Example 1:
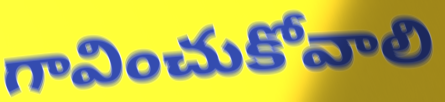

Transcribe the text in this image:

గావించుకోవాలి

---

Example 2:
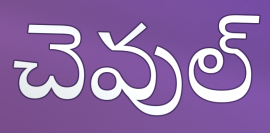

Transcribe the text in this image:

చెవుల్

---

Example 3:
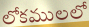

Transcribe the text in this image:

లోకములలో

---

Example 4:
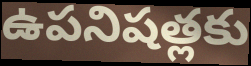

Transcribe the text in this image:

ఉపనిషత్లకు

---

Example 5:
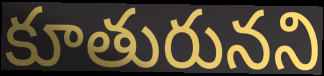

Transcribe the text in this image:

కూతురునని